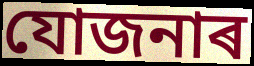
যোজনাৰ